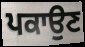
ਪਕਾਉਣ